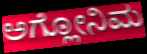
ಅಗ್ಲೋನಿಮ